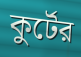
কুর্টের